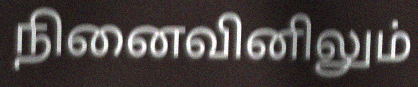
நினைவினிலும்